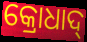
କ୍ରୋଧାଦ୍